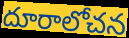
దూరాలోచన